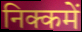
निक्कमें